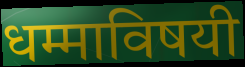
धम्माविषयी